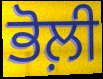
ਭੋਲ਼ੀ